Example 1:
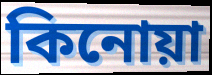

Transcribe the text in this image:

কিনোয়া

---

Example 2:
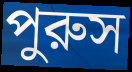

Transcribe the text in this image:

পুরুস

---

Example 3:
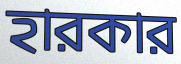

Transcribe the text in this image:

হারকার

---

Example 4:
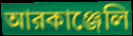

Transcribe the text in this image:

আরকাঞ্জেলি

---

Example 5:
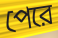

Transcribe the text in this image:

পেরে